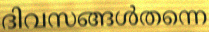
ദിവസങ്ങൾതന്നെ